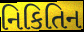
નિકિતિન